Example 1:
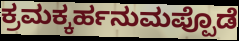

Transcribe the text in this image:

ಕ್ರಮಕ್ಕರ್ಹನುಮಪ್ಪೊಡೆ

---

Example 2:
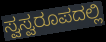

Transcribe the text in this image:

ಸ್ವಸ್ವರೂಪದಲ್ಲಿ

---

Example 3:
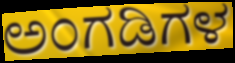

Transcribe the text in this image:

ಅಂಗಡಿಗಳ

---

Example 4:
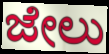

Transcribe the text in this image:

ಜೇಲು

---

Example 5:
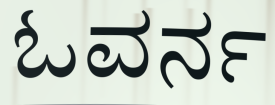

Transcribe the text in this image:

ಓವರ್ನ